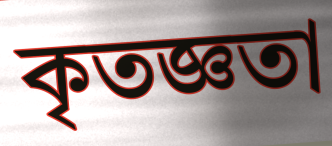
কৃতজ্ঞতা